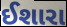
ઈશારા